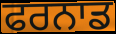
ਫਰਨਾਡ